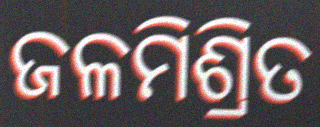
ଜଳମିଶ୍ରିତ